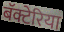
बॅक्टेरिया